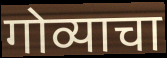
गोव्याचा